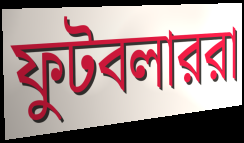
ফুটবলাররা